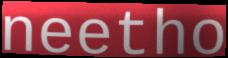
neetho